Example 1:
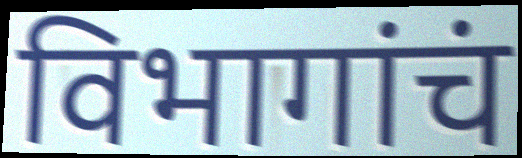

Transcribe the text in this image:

विभागांचं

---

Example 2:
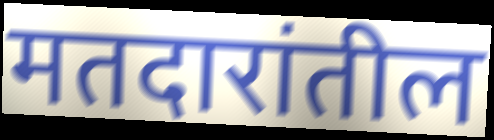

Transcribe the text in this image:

मतदारांतील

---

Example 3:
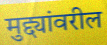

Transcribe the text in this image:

मुद्द्यांवरील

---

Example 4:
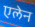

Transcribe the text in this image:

एलेन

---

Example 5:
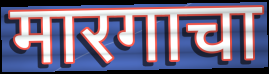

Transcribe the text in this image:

मारगाचा